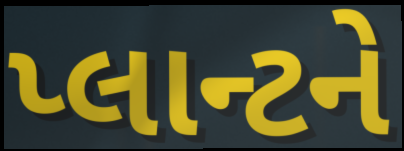
પ્લાન્ટને